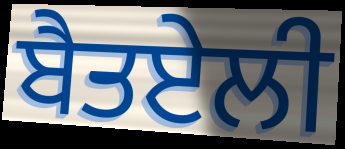
ਬੈਤਏਲੀ